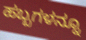
ಹಬ್ಬಗಳನ್ನೂ